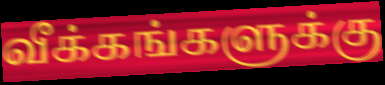
வீக்கங்களுக்கு